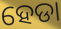
ହେଡା